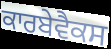
ਕਾਰਬੇਵੈਕਸ